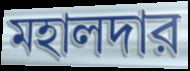
মহালদার